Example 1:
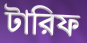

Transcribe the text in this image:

টারিফ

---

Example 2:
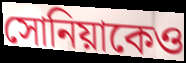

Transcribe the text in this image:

সোনিয়াকেও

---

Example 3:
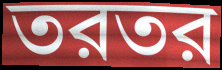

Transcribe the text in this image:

তরতর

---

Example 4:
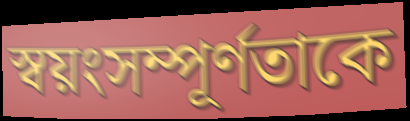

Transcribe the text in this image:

স্বয়ংসম্পূর্ণতাকে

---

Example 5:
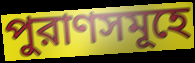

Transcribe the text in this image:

পুরাণসমূহে